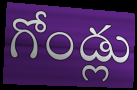
గోండ్లు